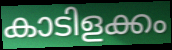
കാടിളക്കം